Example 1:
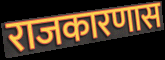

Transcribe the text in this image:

राजकारणास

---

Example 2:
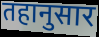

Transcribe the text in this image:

तहानुसार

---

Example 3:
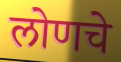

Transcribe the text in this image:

लोणचे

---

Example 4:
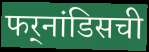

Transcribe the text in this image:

फर्नांडिसची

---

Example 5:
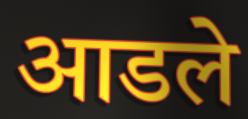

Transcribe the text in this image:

आडले